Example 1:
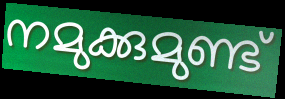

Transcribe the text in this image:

നമുക്കുമുണ്ട്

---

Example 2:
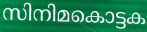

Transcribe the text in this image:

സിനിമകൊട്ടക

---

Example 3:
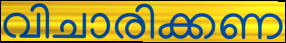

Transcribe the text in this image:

വിചാരിക്കണ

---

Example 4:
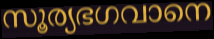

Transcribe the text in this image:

സൂര്യഭഗവാനെ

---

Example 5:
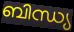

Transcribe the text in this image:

ബിന്ധ്യ